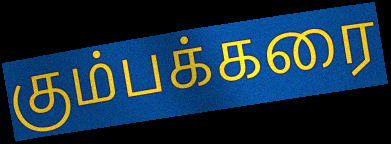
கும்பக்கரை